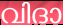
വിദാ